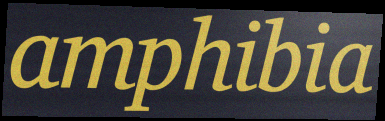
amphibia